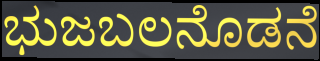
ಭುಜಬಲನೊಡನೆ